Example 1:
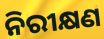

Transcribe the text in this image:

ନିରୀକ୍ଷଣ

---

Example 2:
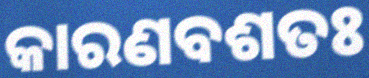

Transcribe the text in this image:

କାରଣବଶତଃ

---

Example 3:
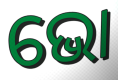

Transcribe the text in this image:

ଭୋ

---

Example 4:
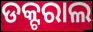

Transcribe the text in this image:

ଡକ୍ଟରାଲ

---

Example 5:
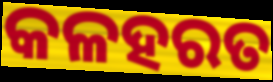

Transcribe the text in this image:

କଳହରତ